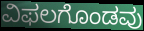
ವಿಫಲಗೊಂಡವು